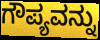
ಗೌಪ್ಯವನ್ನು